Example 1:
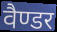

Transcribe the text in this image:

वैण्डर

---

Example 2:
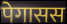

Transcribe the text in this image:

पेगासस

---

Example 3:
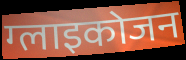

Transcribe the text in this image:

ग्लाइकोजन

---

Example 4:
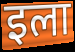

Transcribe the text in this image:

इला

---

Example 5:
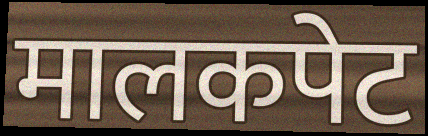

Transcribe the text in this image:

मालकपेट